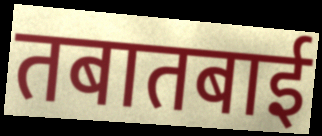
तबातबाई